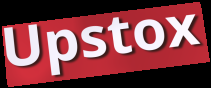
Upstox